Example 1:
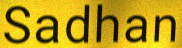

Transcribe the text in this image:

Sadhan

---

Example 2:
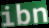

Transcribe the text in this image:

ibn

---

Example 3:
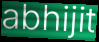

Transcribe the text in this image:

abhijit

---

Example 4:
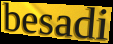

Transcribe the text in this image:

besadi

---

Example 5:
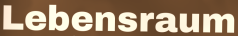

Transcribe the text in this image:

Lebensraum